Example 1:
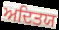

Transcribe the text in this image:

ਅਦਿਤਯ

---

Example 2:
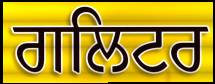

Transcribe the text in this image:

ਗਲਿਟਰ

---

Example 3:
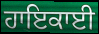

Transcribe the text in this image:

ਹਾਇਕਾਈ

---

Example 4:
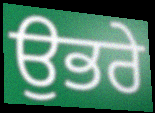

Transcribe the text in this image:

ਉਭਰੇ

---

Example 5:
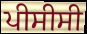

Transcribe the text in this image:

ਪੀਸੀਸੀ